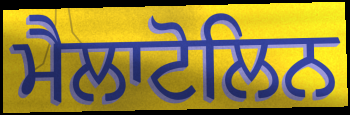
ਮੈਲਾਟੋਲਿਨ